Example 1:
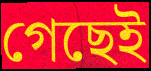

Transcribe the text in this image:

গেছেই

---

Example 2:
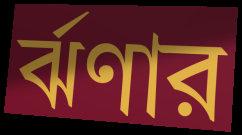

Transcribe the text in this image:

র্ঝণার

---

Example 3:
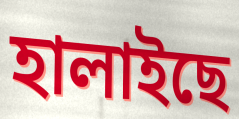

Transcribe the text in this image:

হালাইছে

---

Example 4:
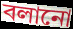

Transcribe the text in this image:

বলানো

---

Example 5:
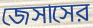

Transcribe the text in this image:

জেসাসের